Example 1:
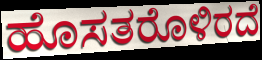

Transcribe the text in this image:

ಹೊಸತರೊಳಿರದೆ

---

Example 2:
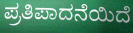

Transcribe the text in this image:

ಪ್ರತಿಪಾದನೆಯಿದೆ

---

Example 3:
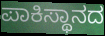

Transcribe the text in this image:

ಪಾಕಿಸ್ಥಾನದ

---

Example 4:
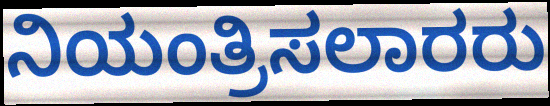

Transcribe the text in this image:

ನಿಯಂತ್ರಿಸಲಾರರು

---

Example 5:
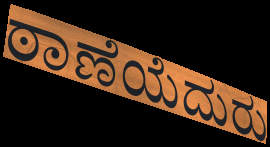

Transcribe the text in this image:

ಠಾಣೆಯೆದುರು